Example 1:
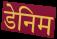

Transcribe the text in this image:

डेनिम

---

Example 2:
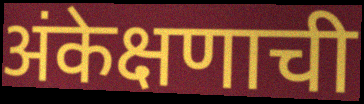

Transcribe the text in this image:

अंकेक्षणाची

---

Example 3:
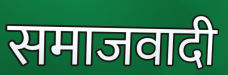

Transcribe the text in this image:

समाजवादी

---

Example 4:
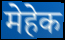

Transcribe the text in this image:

मेहेक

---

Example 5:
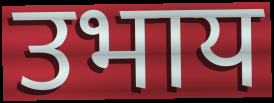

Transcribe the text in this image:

उभाय